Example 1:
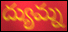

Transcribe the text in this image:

ద్యుమ్న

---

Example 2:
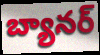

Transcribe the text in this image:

బ్యానర్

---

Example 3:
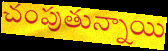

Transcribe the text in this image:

చంపుతున్నాయి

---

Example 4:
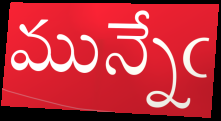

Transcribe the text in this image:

మున్నేఁ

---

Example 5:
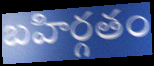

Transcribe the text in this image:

బహిర్గతం